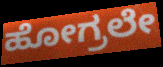
ಹೋಗ್ರಲೇ